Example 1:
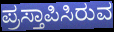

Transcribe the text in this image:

ಪ್ರಸ್ತಾಪಿಸಿರುವ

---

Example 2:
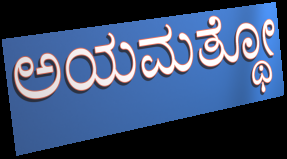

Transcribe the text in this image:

ಅಯಮತ್ಥೋ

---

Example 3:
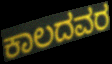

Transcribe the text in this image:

ಕಾಲದವರ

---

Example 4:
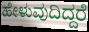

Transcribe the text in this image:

ಹೇಳುವುದಿದ್ದರೆ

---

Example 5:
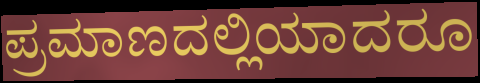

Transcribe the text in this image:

ಪ್ರಮಾಣದಲ್ಲಿಯಾದರೂ